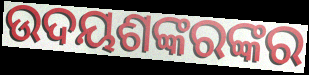
ଉଦୟଶଙ୍କରଙ୍କର